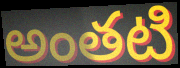
అంతటి